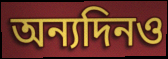
অন্যদিনও